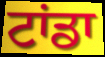
ਟਾਂਡਾ